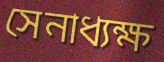
সেনাধ্যক্ষ